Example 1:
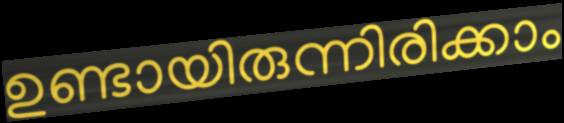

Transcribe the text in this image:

ഉണ്ടായിരുന്നിരിക്കാം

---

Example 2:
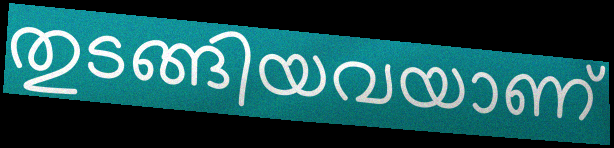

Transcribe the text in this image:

തുടങ്ങിയവയാണ്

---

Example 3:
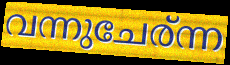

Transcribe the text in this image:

വന്നുചേര്ന്ന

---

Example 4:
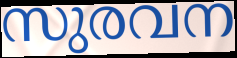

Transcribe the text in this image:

സുരവന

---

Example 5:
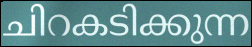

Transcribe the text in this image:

ചിറകടിക്കുന്ന